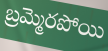
బ్రమ్మెరపోయి